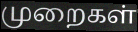
முறைகள்